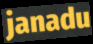
janadu